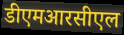
डीएमआरसीएल